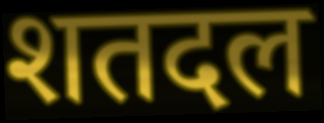
शतदल